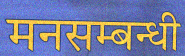
मनसम्बन्धी